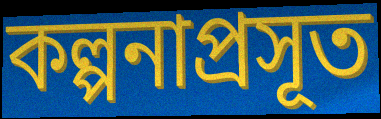
কল্পনাপ্ৰসূত